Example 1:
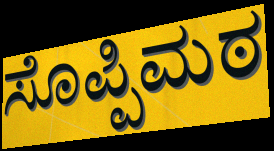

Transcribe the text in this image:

ಸೊಪ್ಪಿಮಠ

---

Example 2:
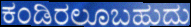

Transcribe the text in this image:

ಕಂಡಿರಲೂಬಹುದು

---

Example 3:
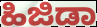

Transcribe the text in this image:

ಹಿಜಿಡಾ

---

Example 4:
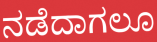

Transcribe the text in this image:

ನಡೆದಾಗಲೂ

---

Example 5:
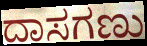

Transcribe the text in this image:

ದಾಸಗಣು